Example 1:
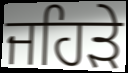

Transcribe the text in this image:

ਜਹਿੜੇ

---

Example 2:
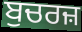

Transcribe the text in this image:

ਬੁਚਰਜ਼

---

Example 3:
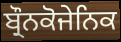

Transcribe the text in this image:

ਬ੍ਰੌਨਕੋਜੇਨਿਕ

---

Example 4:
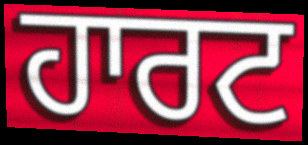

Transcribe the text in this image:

ਹਾਰਟ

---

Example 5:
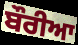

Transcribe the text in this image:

ਬੌਰੀਆ